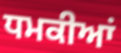
ਧਮਕੀਆਂ